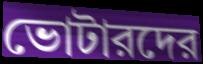
ভোটারদের